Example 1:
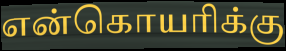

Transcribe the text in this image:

என்கொயரிக்கு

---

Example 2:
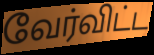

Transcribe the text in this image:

வேர்விட்ட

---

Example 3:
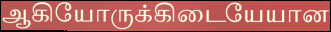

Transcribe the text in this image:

ஆகியோருக்கிடையேயான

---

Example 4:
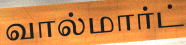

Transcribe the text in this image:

வால்மார்ட்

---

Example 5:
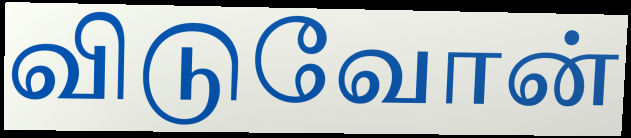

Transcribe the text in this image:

விடுவோன்